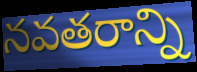
నవతరాన్ని